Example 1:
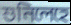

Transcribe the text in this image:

শুনিলেহে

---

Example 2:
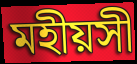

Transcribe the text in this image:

মহীয়সী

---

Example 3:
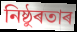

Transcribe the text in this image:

নিষ্ঠুৰতাৰ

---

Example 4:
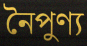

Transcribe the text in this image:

নৈপুণ্য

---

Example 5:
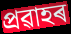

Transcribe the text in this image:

প্ৰৱাহৰ